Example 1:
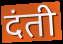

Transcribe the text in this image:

दंती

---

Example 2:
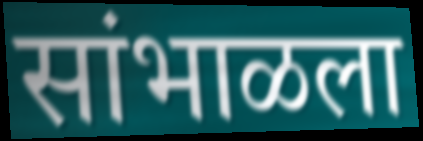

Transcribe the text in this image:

सांभाळला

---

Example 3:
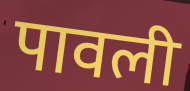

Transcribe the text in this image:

पावली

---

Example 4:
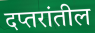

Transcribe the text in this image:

दप्तरांतील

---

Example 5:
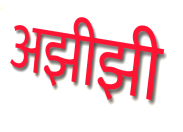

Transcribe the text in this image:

अझीझी